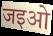
जइओ